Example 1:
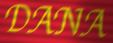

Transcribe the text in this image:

DANA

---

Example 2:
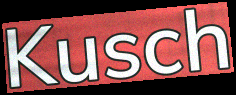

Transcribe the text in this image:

Kusch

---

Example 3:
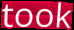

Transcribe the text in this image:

took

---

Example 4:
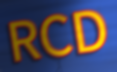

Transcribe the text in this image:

RCD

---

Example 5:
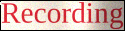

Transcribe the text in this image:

Recording